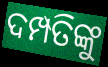
ଦମ୍ପତିଙ୍କୁ